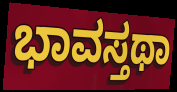
ಭಾವಸ್ತಥಾ